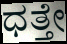
ಧತ್ತೇ